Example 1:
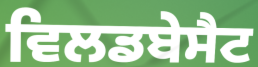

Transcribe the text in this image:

ਵਿਲਡਬੇਸੈਟ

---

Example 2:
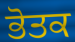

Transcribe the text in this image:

ਭੋਤਕ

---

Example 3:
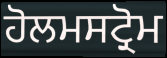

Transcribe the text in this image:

ਹੋਲਮਸਟ੍ਰੋਮ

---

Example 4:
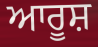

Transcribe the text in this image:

ਆਰੂਸ਼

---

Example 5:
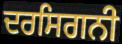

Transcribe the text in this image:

ਦਰਸਿਗਨੀ